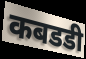
कबडडी